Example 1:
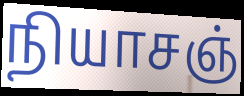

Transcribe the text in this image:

நியாசஞ்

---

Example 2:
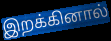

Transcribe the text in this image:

இறக்கினால்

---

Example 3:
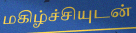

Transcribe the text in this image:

மகிழ்ச்சியுடன்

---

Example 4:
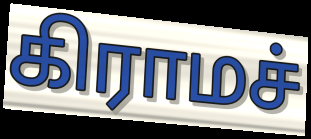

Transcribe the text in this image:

கிராமச்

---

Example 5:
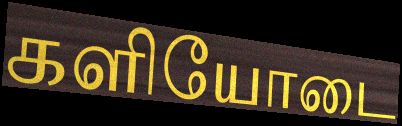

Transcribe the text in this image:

களியோடை